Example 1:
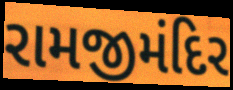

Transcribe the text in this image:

રામજીમંદિર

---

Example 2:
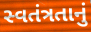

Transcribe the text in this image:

સ્વતંત્રતાનું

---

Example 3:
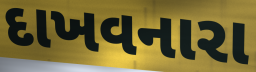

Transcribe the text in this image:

દાખવનારા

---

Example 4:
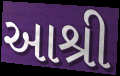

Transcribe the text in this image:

આશ્રી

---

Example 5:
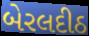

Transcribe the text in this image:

બેરલદીઠ